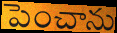
పెంచాను